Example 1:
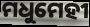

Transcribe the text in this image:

ମଧୁମେହୀ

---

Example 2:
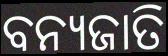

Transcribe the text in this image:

ବନ୍ୟଜାତି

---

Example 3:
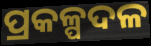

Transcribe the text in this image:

ପ୍ରକଳ୍ପଦଳ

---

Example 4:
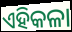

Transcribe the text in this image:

ଏହିକଳା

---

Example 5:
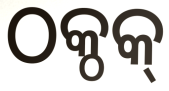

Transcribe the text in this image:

ଠକ୍ଠକ୍